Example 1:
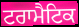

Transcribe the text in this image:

ਟਰਾਮੈਟਿਕ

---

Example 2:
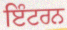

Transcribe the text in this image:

ਇੰਟਰਨ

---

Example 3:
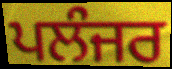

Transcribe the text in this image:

ਪਲੰਜਰ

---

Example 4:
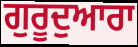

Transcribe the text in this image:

ਗੁਰੂਦੁਆਰਾ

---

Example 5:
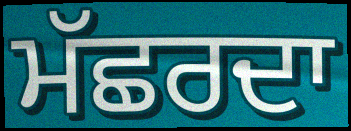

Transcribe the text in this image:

ਮੱਛਰਦਾ